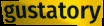
gustatory